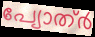
പ്യോത്ർ